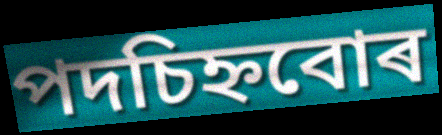
পদচিহ্নবোৰ